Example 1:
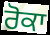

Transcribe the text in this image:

ਰੋਕਾ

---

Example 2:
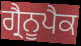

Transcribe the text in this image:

ਗ੍ਰੈਨੂਪੈਕ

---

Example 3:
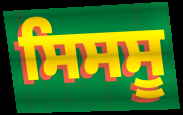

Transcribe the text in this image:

ਸਿਸਸੂ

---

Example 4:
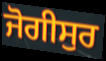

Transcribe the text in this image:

ਜੋਗੀਸੁਰ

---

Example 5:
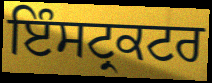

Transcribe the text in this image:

ਇੰਸਟ੍ਰਕਟਰ